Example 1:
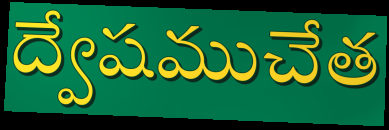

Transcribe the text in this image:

ద్వేషముచేత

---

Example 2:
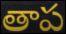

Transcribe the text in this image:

తాప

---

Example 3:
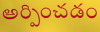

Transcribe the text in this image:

అర్పించడం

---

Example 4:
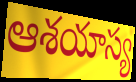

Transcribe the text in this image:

ఆశయాస్య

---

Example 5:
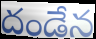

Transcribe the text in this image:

దండేన